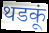
थडकूं